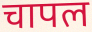
चापल